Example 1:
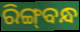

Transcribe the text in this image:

ରିଙ୍ଗ୍‌ବନ୍ଧ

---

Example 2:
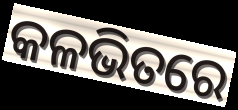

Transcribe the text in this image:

କଳଭିତରେ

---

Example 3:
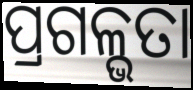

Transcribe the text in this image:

ପ୍ରଗଳ୍ଭତା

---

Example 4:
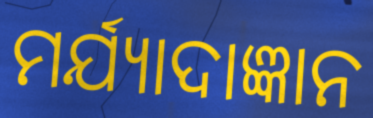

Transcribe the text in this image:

ମର୍ଯ୍ୟାଦାଜ୍ଞାନ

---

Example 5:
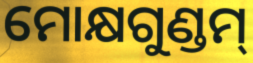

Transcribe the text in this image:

ମୋକ୍ଷଗୁଣ୍ଡମ୍